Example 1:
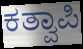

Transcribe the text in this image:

ಕತ್ವಾಪಿ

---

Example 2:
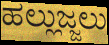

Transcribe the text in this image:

ಹಲ್ಲುಜ್ಜಲು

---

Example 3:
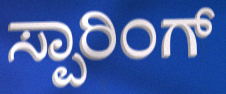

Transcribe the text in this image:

ಸ್ಪಾರಿಂಗ್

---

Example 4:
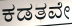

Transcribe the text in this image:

ಕಡತವೇ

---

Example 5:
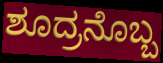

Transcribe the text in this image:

ಶೂದ್ರನೊಬ್ಬ